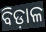
ବିଡ଼ାଳ